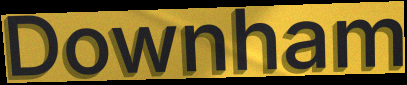
Downham